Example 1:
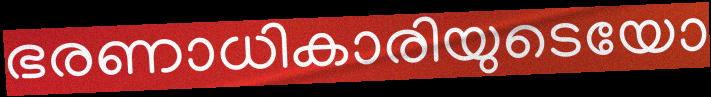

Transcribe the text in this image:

ഭരണാധികാരിയുടെയോ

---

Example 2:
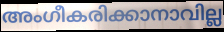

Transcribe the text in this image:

അംഗീകരിക്കാനാവില്ല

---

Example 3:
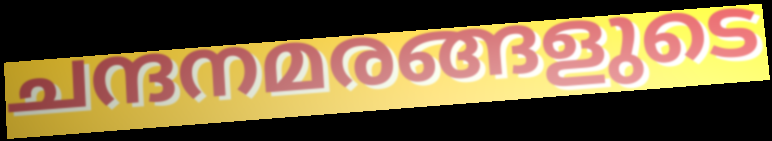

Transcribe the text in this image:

ചന്ദനമരങ്ങളുടെ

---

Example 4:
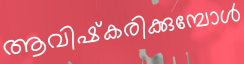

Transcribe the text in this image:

ആവിഷ്‌കരിക്കുമ്പോൾ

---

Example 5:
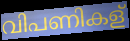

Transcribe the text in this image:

വിപണികള്